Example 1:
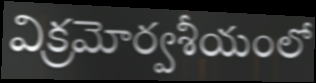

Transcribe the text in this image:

విక్రమోర్వశీయంలో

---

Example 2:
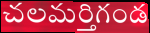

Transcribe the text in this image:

చలమర్తిగండ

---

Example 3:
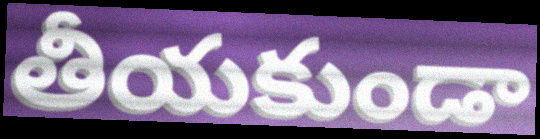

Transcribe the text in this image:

తీయకుండా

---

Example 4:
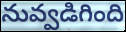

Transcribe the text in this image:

నువ్వడిగింది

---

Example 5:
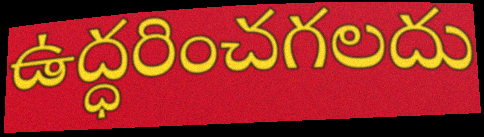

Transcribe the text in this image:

ఉద్ధరించగలదు